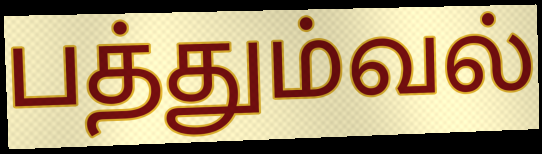
பத்தும்வல்